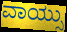
ವಾಯ್ಸು